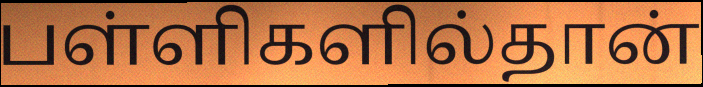
பள்ளிகளில்தான்